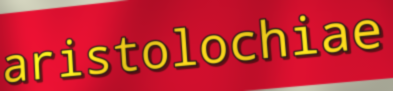
aristolochiae